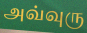
அவ்வுரு